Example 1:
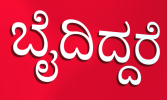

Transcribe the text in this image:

ಬೈದಿದ್ದರೆ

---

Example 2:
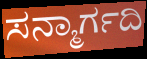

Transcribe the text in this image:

ಸನ್ಮಾರ್ಗದಿ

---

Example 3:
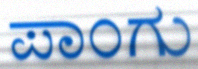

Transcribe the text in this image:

ಪಾಂಗು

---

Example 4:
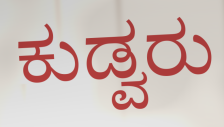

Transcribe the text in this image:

ಕುಡ್ವರು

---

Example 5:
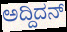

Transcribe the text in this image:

ಅದ್ದಿದನ್